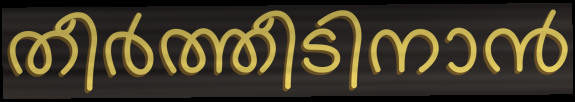
തീർത്തീടിനാൻ